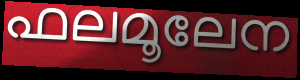
ഫലമൂലേന